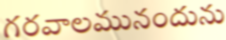
గరవాలమునందును